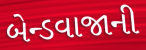
બેન્ડવાજાની